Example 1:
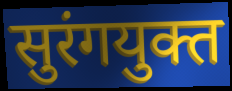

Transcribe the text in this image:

सुरंगयुक्त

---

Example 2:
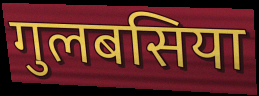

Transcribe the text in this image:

गुलबसिया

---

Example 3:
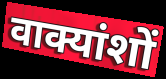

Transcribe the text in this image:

वाक्यांशों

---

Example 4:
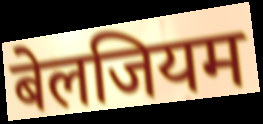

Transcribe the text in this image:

बेलजियम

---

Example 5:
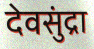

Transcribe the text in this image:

देवसुंद्रा